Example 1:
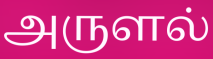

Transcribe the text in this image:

அருளல்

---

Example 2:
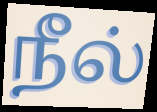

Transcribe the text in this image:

நீல்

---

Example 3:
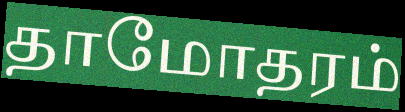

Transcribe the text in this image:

தாமோதரம்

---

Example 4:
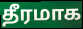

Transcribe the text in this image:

தீரமாக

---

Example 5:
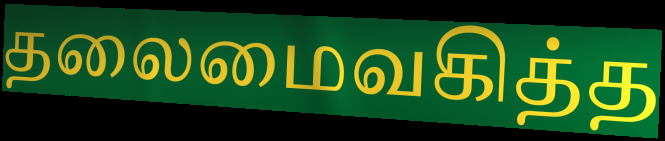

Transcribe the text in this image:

தலைமைவகித்த